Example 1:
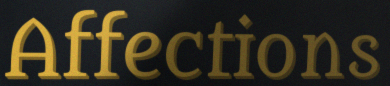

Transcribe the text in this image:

Affections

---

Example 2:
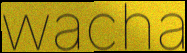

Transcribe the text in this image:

wacha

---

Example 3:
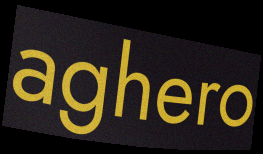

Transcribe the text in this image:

aghero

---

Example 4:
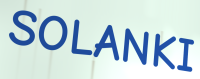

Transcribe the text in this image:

SOLANKI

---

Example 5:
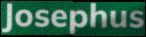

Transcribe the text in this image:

Josephus